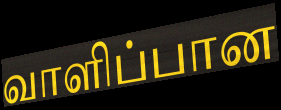
வாளிப்பான